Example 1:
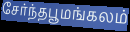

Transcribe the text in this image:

சேர்ந்தபூமங்கலம்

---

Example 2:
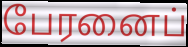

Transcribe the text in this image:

பேரனைப்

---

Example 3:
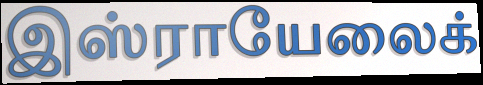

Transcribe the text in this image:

இஸ்ராயேலைக்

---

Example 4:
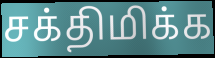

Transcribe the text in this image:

சக்திமிக்க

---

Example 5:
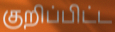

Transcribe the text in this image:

குறிப்பிட்ட